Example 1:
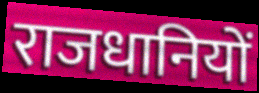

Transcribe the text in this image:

राजधानियों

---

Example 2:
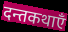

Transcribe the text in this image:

दन्तकथाएँ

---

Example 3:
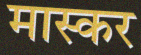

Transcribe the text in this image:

मास्कर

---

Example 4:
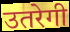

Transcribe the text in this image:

उतरेगी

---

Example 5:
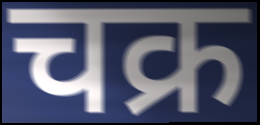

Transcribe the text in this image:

चक्र